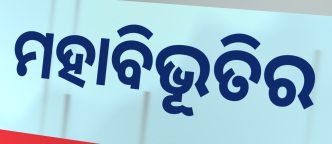
ମହାବିଭୂତିର